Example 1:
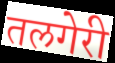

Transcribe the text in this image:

तलगेरी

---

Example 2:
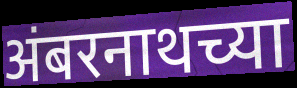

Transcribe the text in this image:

अंबरनाथच्या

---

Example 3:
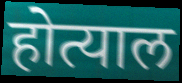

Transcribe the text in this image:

होत्याल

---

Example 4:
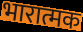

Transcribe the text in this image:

भारात्मक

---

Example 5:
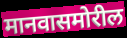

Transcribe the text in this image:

मानवासमोरील